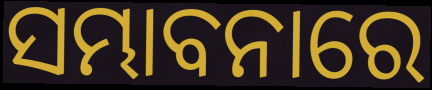
ସମ୍ଭାବନାରେ